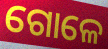
ଗୋଳେ